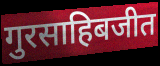
गुरसाहिबजीत